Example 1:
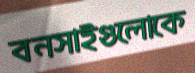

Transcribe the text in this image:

বনসাইগুলোকে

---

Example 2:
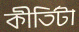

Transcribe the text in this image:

কীর্তিটা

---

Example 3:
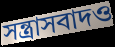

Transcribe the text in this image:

সন্ত্রাসবাদও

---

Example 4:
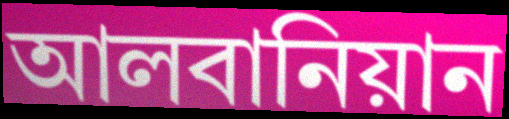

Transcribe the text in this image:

আলবানিয়ান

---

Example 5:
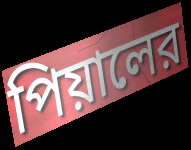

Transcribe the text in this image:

পিয়ালের